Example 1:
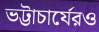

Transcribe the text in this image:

ভট্টাচার্যেরও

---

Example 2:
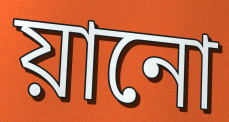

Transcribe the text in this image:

য়ানো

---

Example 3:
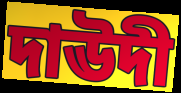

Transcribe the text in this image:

দাঊদী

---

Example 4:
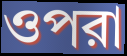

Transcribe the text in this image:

ওপরা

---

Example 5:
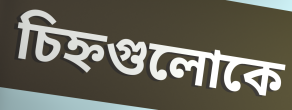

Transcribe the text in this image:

চিহ্নগুলোকে